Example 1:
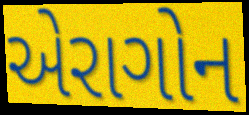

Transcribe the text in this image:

એરાગોન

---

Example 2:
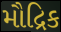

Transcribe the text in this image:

મૌદ્રિક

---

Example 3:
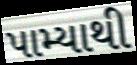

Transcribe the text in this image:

પામ્યાથી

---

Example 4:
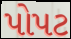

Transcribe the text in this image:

પોપટ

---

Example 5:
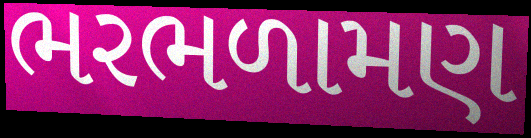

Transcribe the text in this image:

ભરભળામણ